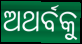
ଅଥର୍ବକୁ